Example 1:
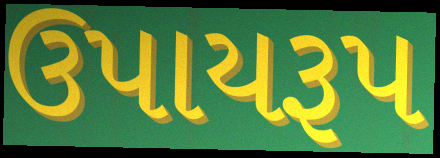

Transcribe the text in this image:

ઉપાયરૂપ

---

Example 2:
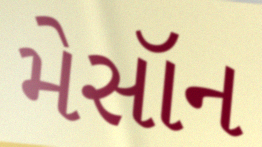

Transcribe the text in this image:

મેસૉન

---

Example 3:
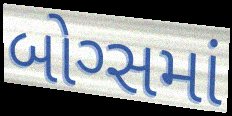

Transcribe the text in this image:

બોગ્સમાં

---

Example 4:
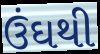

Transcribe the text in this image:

ઉંઘથી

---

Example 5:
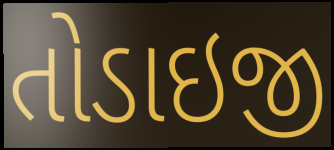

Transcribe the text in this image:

તોડાઇજી